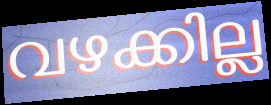
വഴക്കില്ല